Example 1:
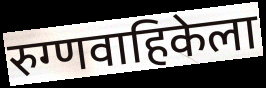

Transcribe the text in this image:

रुग्णवाहिकेला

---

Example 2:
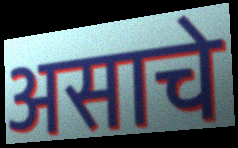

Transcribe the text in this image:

असाचे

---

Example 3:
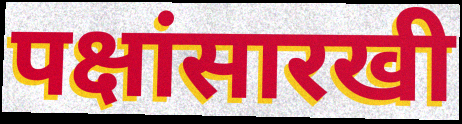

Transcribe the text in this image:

पक्षांसारखी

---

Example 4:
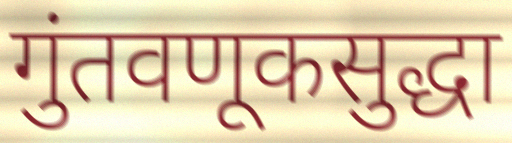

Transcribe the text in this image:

गुंतवणूकसुद्धा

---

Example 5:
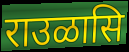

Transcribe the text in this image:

राउळासि